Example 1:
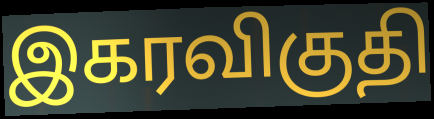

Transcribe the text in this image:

இகரவிகுதி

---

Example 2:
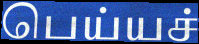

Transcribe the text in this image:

பெய்யச்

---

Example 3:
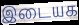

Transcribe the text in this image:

இடையக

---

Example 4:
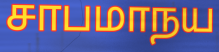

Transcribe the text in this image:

சாபமாநய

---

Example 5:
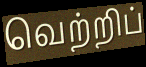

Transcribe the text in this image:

வெற்றிப்